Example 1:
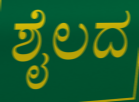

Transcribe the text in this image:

ಶೈಲದ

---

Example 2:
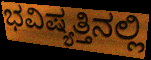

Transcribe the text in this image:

ಭವಿಷ್ಯತ್ತಿನಲ್ಲಿ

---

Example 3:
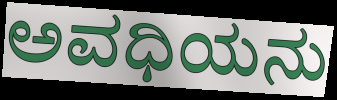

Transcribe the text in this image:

ಅವಧಿಯನು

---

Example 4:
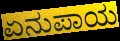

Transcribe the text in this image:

ಏನುಪಾಯ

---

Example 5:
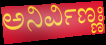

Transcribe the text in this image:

ಅನಿರ್ವಿಣ್ಣಃ